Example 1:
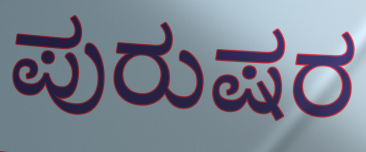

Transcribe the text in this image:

ಪುರುಷರ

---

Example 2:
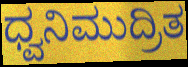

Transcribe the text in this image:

ಧ್ವನಿಮುದ್ರಿತ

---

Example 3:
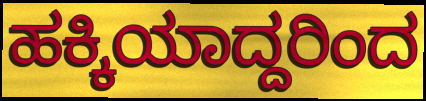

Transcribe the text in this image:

ಹಕ್ಕಿಯಾದ್ದರಿಂದ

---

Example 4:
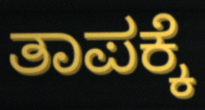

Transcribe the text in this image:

ತಾಪಕ್ಕೆ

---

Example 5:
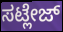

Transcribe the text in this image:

ಸಟ್ಲೇಜ್